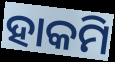
ହାକମି